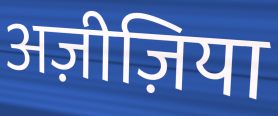
अज़ीज़िया